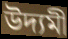
উদ্যমী